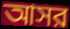
আসর